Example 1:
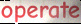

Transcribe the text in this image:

operate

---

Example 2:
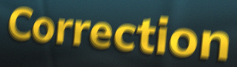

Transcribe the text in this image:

Correction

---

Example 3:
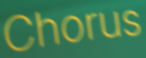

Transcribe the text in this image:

Chorus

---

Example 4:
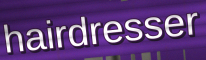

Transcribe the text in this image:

hairdresser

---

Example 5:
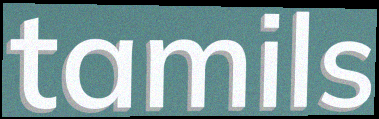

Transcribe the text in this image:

tamils